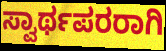
ಸ್ವಾರ್ಥಪರರಾಗಿ